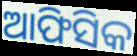
ଆଫିସିକ